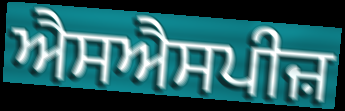
ਐਸਐਸਪੀਜ਼